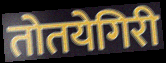
तोतयेगिरी